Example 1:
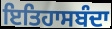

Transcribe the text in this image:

ਇਤਿਹਾਸਬੰਦਾ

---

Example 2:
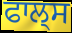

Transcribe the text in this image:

ਫਾਲ੍ਸ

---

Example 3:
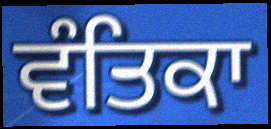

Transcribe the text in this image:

ਵੰਤਿਕਾ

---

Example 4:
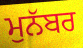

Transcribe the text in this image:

ਮੁਨੱਬਰ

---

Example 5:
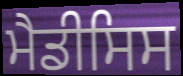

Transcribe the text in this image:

ਮੈਡੀਸਿਸ